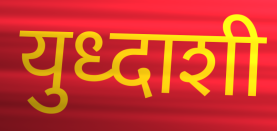
युध्दाशी